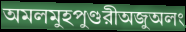
অমলমুহপুণ্ডরীঅজুঅলং